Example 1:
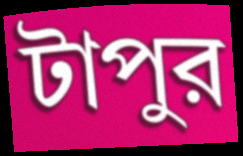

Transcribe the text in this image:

টাপুর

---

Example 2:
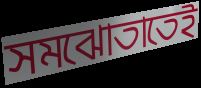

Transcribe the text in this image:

সমঝোতাতেই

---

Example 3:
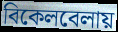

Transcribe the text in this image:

বিকেলবেলায়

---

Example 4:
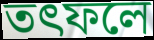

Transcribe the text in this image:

তৎফলে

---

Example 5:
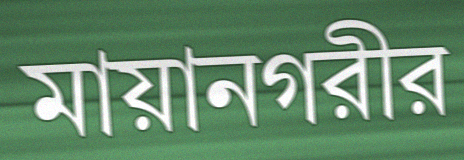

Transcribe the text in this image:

মায়ানগরীর